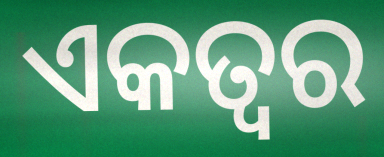
ଏକତ୍ବର